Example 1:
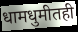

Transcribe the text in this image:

धामधुमीतही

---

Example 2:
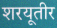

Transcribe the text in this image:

शरयूतीर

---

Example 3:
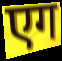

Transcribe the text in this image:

एग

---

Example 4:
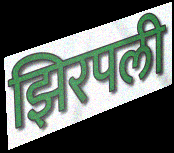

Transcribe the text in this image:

झिरपली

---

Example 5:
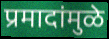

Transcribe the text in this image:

प्रमादांमुळे